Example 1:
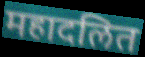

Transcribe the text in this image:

महादलित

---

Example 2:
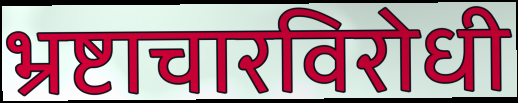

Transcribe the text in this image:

भ्रष्टाचारविरोधी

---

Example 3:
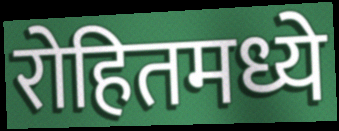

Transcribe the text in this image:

रोहितमध्ये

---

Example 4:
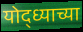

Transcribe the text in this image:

योद्ध्याच्या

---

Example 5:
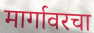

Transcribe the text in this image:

मार्गावरचा